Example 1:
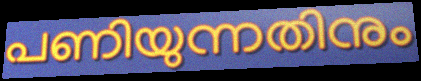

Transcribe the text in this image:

പണിയുന്നതിനും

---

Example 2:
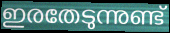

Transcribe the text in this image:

ഇരതേടുന്നുണ്ട്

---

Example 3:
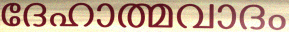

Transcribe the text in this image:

ദേഹാത്മവാദം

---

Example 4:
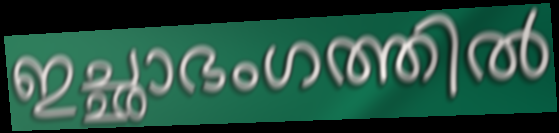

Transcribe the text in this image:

ഇച്ഛാഭംഗത്തിൽ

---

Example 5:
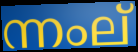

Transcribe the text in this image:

ന്നംല്